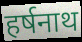
हर्षनाथ